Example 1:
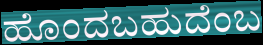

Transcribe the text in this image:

ಹೊಂದಬಹುದೆಂಬ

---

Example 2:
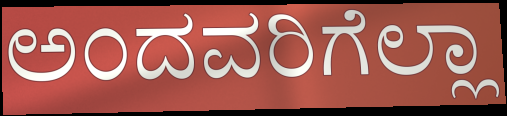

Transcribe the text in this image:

ಅಂದವರಿಗೆಲ್ಲಾ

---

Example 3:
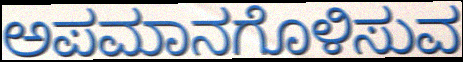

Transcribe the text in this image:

ಅಪಮಾನಗೊಳಿಸುವ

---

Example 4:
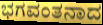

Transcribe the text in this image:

ಭಗವಂತನಾದ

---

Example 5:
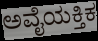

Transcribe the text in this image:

ಅವೈಯಕ್ತಿಕ